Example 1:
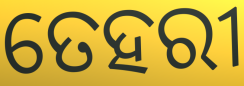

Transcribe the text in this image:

ତେହରୀ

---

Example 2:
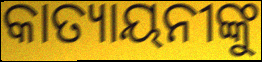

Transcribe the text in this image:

କାତ୍ୟାୟନୀଙ୍କୁ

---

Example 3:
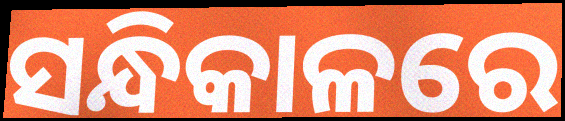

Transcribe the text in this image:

ସନ୍ଧିକାଳରେ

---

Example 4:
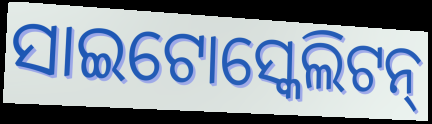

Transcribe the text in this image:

ସାଇଟୋସ୍କେଲିଟନ୍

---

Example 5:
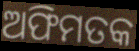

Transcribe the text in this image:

ଅଫିମତକ